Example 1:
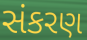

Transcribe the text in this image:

સંકરણ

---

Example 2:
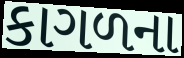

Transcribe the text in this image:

કાગળના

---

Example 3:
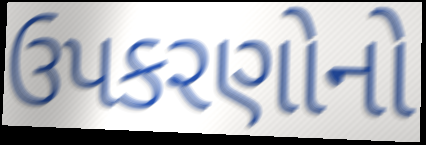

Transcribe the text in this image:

ઉપકરણોનો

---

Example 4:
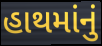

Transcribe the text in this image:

હાથમાંનું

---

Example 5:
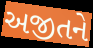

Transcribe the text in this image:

અજીતને